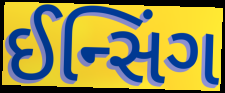
ઈન્સિંગ